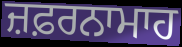
ਜ਼ਫ਼ਰਨਾਮਾਹ